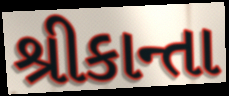
શ્રીકાન્તા